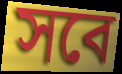
সবে